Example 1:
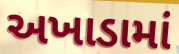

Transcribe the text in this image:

અખાડામાં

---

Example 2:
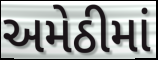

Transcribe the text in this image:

અમેઠીમાં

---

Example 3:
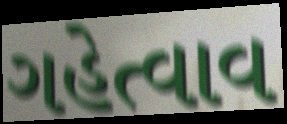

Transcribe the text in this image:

ગહેત્વાવ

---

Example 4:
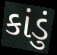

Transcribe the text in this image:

કાંડું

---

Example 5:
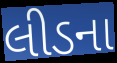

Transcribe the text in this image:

લીડના